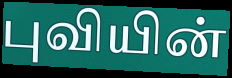
புவியின்